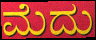
ಮೆದು